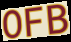
OFB